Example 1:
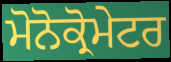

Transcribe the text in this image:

ਮੋਨੋਕ੍ਰੋਮੇਟਰ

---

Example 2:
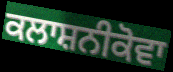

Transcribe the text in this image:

ਕਲਾਸ਼ਨੀਕੋਵਾ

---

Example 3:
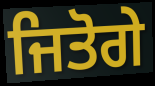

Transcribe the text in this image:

ਜਿਤੋਗੇ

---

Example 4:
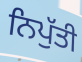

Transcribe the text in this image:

ਨਿਪੁੱਤੀ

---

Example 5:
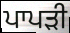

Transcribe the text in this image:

ਪਾਪੜੀ